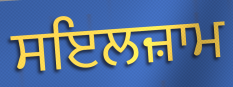
ਸਇਲਜ਼ਾਮ